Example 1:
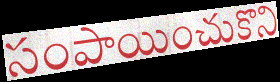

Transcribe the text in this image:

సంపాయించుకొని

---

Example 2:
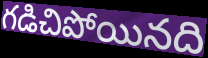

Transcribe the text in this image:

గడిచిపోయినది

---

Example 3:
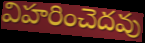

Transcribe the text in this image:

విహరించెదవు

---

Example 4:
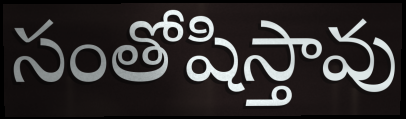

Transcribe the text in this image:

సంతోషిస్తావు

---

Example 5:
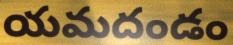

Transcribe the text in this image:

యమదండం